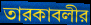
তারকাবলীর